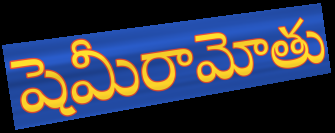
షెమీరామోతు